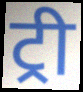
ट्री